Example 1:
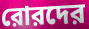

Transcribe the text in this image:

রোরদের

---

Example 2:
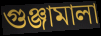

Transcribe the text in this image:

গুঞ্জামালা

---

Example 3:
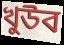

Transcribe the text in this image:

খুউব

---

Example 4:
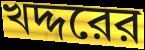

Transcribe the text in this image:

খদ্দরের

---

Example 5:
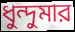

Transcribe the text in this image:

ধুন্দুমার